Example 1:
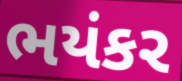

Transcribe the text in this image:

ભયંકર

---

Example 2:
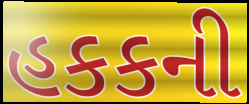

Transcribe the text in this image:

હકકની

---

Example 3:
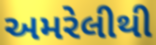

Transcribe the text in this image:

અમરેલીથી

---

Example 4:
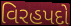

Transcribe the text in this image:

વિરહપદો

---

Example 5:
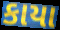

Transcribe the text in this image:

કાયા